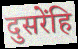
दुसरेंहि